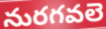
నురగవలె